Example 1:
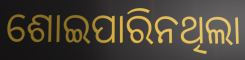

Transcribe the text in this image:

ଶୋଇପାରିନଥିଲା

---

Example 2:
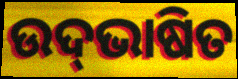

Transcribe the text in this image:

ଉଦ୍‍ଭାଷିତ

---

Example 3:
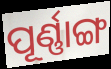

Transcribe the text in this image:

ପୂର୍ଣ୍ଣାଙ୍ଗ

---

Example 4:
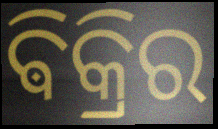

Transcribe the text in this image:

ଵିକ୍ରିର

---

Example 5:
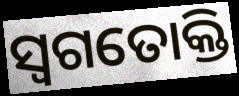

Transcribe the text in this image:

ସ୍ୱଗତୋକ୍ତି